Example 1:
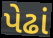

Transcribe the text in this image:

પેઢાં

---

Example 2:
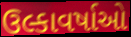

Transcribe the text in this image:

ઉલ્કાવર્ષાઓ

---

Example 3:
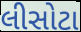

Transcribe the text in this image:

લીસોટા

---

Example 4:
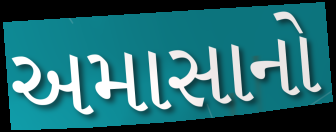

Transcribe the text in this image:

અમાસાનો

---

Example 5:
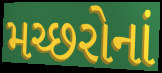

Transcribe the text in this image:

મચ્છરોનાં